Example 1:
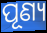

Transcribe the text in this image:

ପୂଣ୍ୟ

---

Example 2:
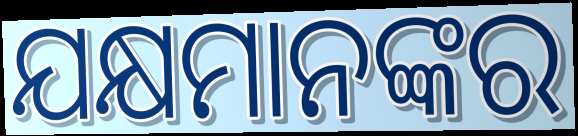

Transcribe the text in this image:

ଯକ୍ଷମାନଙ୍କର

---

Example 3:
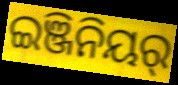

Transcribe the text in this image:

ଇଞ୍ଜିନିୟର୍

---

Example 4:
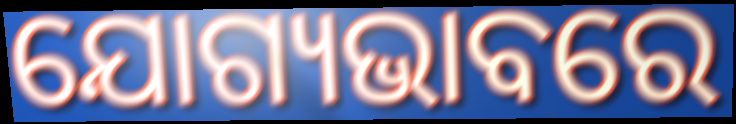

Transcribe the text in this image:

ଯୋଗ୍ୟଭାବରେ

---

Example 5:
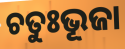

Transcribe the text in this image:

ଚତୁଃଭୂଜା